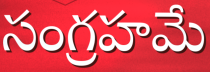
సంగ్రహమే